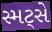
સ્મટ્સે